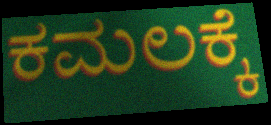
ಕಮಲಕ್ಕೆ